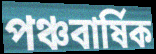
পঞ্চবার্ষিক